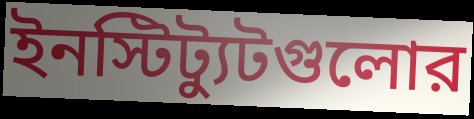
ইনস্টিট্যুটগুলোর